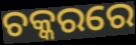
ଚକ୍କରରେ